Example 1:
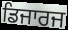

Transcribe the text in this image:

ਡਿਜਾਰਜ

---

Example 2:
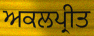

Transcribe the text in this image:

ਅਕਲਪ੍ਰੀਤ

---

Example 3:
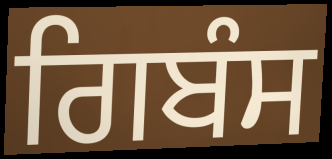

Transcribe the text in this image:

ਗਿਬੰਸ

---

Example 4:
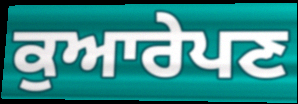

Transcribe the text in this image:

ਕੁਆਰੇਪਣ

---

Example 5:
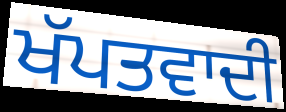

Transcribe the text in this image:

ਖੱਪਤਵਾਦੀ